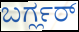
ಬರ್ಗ್ಲರ್